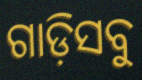
ଗାଡ଼ିସବୁ